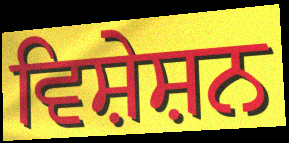
ਵਿਸ਼ੇਸ਼ਨ